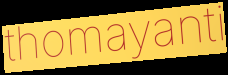
thomayanti